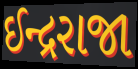
ઈન્દ્રરાજા